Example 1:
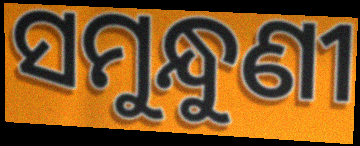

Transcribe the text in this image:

ସମୁନ୍ଧୁଣୀ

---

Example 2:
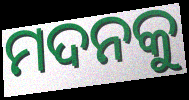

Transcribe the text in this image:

ମଦନକୁ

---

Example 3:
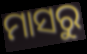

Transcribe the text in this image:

ମାସରୁ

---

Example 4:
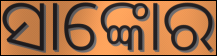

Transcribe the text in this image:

ସାଙ୍କୋର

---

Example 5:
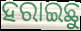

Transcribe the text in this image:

ହରାଇଛୁ